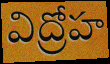
విద్రోహ